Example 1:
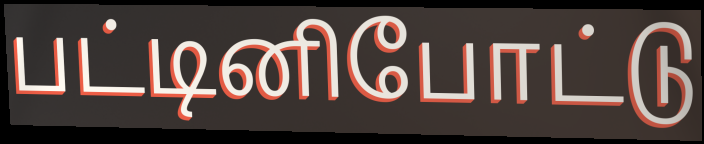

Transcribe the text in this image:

பட்டினிபோட்டு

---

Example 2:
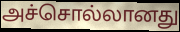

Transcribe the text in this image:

அச்சொல்லானது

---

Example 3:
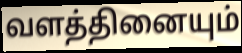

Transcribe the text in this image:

வளத்தினையும்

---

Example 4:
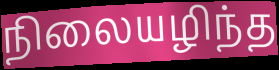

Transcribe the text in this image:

நிலையழிந்த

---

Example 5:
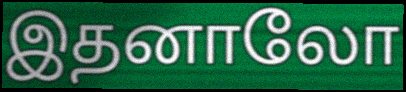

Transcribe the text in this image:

இதனாலோ